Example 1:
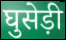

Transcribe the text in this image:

घुसेड़ी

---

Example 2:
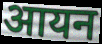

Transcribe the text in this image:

आयन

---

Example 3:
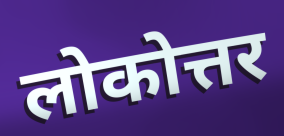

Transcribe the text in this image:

लोकोत्तर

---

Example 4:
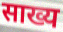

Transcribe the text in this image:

साख्य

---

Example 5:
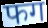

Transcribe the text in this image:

फग